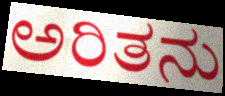
ಅರಿತನು